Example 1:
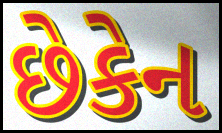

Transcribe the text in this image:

છેકેન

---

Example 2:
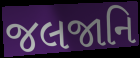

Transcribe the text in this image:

જલજાનિ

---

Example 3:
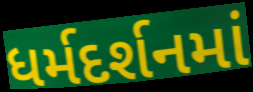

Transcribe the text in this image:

ધર્મદર્શનમાં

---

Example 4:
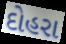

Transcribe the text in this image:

દોહરા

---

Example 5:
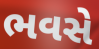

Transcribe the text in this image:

ભવસે